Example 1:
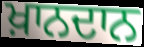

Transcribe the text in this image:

ਖ਼ਾਨਦਾਨ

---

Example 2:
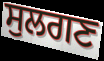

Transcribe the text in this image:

ਸੁਲਗਣ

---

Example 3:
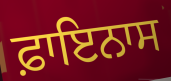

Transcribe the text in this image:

ਫ਼ਾਇਨਾਸ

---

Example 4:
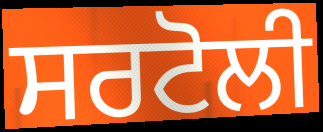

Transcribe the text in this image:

ਸਰਟੋਲੀ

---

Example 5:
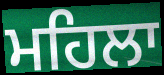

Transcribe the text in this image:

ਮਹਿਲਾ